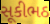
સૂકીભઠ